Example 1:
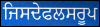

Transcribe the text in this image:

ਜਿਸਦੇਫਲਸਰੂਪ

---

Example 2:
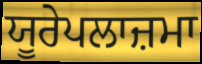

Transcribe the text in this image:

ਯੂਰੇਪਲਾਜ਼ਮਾ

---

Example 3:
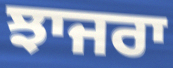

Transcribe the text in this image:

ਝਾਜਰਾ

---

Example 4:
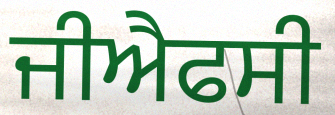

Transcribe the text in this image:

ਜੀਐਫਸੀ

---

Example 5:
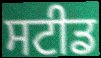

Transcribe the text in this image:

ਸਟੀਡ